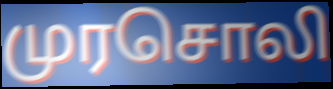
முரசொலி